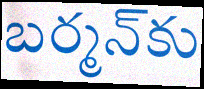
బర్మన్‌కు